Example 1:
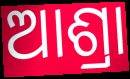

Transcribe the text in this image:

ଆଶ୍ରା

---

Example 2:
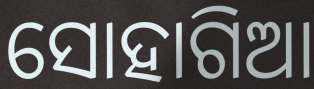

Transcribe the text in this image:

ସୋହାଗିଆ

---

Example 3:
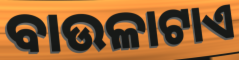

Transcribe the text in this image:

ବାଉଳାଟାଏ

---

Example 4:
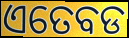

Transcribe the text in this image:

ଏତେବଡ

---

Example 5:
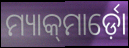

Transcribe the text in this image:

ମ୍ୟାକ୍‍ମାର୍ଡ଼ୋ